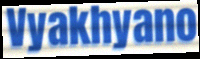
Vyakhyano